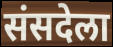
संसदेला